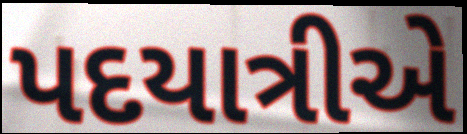
પદયાત્રીએ